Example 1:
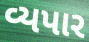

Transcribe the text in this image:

વ્યપાર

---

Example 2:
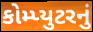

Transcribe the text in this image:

કોમ્પ્યુટરનું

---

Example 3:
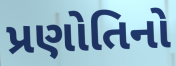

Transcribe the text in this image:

પ્રણોતિનો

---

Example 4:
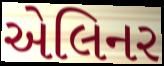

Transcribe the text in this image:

એલિનર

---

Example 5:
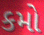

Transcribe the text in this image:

કમો